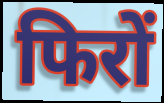
फिरों